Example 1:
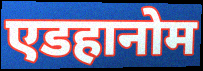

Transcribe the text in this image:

एडहानोम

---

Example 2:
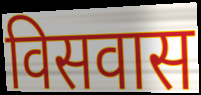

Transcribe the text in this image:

विसवास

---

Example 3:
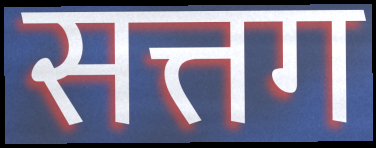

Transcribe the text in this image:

सत्तग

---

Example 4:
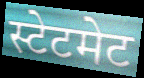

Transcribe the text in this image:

स्टेटमेट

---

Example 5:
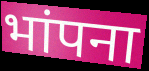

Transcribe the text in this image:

भांपना